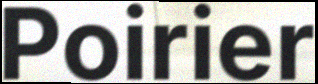
Poirier